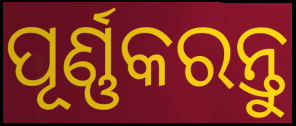
ପୂର୍ଣ୍ଣକରନ୍ତୁ